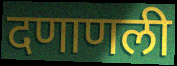
दणाणली